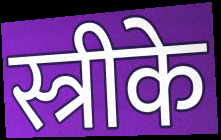
स्त्रीके